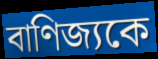
বাণিজ্যকে